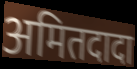
अमितदादा